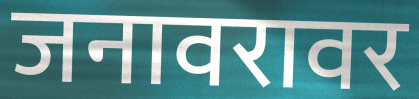
जनावरावर